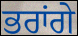
ਭਰਾਂਗੇ